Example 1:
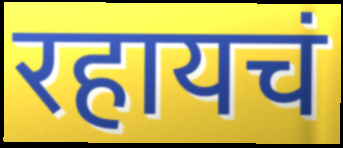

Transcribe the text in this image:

रहायचं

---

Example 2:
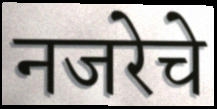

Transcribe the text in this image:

नजरेचे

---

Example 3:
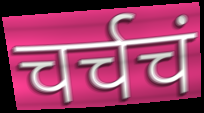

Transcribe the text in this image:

चर्चचं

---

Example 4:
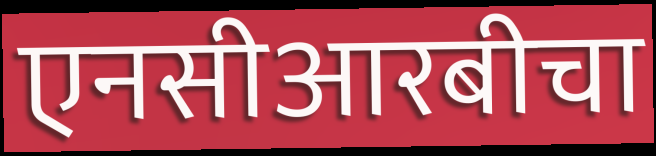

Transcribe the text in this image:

एनसीआरबीचा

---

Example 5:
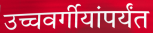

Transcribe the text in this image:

उच्चवर्गीयांपर्यंत